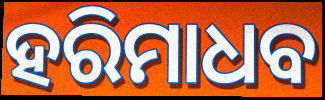
ହରିମାଧବ